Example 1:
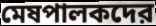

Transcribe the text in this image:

মেষপালকদের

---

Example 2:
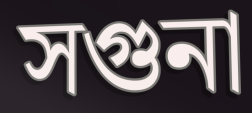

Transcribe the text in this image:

সগুনা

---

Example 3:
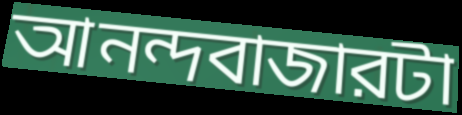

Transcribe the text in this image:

আনন্দবাজারটা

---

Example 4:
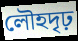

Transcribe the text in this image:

লৌহদৃঢ়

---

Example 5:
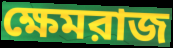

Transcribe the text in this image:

ক্ষেমরাজ